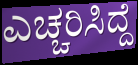
ಎಚ್ಚರಿಸಿದ್ದೆ